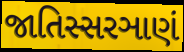
જાતિસ્સરઞાણં